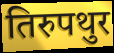
तिरुपथुर